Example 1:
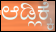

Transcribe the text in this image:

ಆಡ್ಲಿಕ್ಕೆ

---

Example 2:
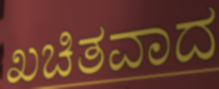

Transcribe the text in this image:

ಖಚಿತವಾದ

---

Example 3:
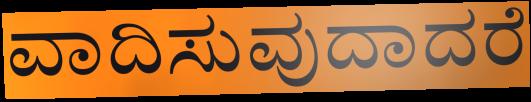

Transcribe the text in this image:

ವಾದಿಸುವುದಾದರೆ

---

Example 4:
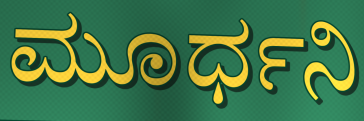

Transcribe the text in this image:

ಮೂರ್ಧನಿ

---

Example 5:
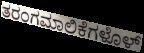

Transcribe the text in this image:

ತರಂಗಮಾಲಿಕೆಗಳೊಳ್